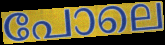
പോലെ